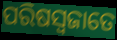
ପରିଷସ୍ଵଜାତେ